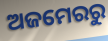
ଅଜମେରରୁ